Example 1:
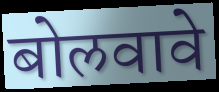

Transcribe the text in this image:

बोलवावे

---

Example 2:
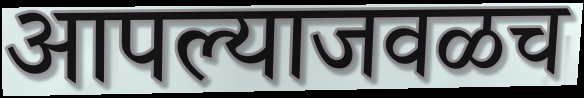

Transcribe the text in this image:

आपल्याजवळच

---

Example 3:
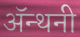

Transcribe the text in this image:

ॲन्थनी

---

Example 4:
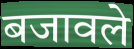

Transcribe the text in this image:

बजावले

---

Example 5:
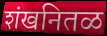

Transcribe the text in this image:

शंखनितळ